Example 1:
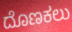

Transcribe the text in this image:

ದೊಣಕಲು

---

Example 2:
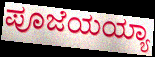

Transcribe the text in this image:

ಪೂಜೆಯಯ್ಯಾ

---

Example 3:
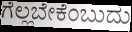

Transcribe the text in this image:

ಗೆಲ್ಲಬೇಕೆಂಬುದು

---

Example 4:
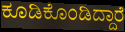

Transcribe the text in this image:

ಕೂಡಿಕೊಂಡಿದ್ದಾರೆ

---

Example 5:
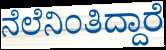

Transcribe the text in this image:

ನೆಲೆನಿಂತಿದ್ದಾರೆ